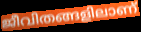
ജീവിതങ്ങളിലാണ്